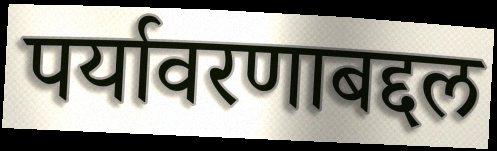
पर्यावरणाबद्दल